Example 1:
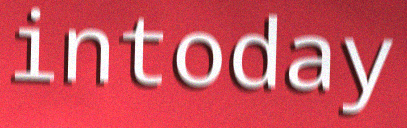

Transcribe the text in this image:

intoday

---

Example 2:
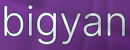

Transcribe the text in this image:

bigyan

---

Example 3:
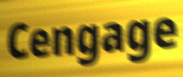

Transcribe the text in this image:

Cengage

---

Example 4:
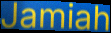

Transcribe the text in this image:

Jamiah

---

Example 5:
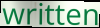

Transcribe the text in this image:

written